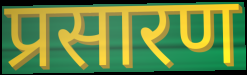
प्रसारण